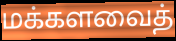
மக்களவைத்